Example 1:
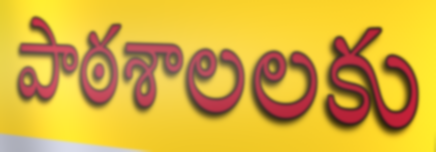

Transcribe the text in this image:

పాఠశాలలకు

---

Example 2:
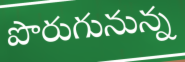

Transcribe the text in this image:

పొరుగునున్న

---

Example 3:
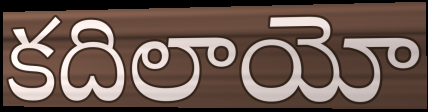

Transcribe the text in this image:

కదిలాయో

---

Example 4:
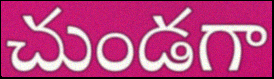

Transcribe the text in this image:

చుండగా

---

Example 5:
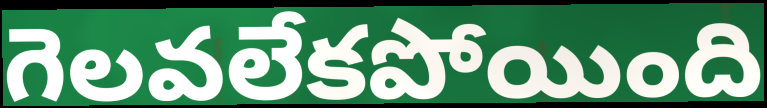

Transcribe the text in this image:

గెలవలేకపోయింది